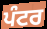
ਪੰਟਰ